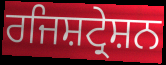
ਰਜਿਸ਼ਟ੍ਰੇਸ਼ਨ